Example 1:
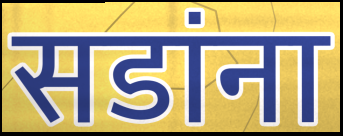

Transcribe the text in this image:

सडांना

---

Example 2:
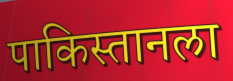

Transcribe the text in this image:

पाकिस्तानला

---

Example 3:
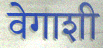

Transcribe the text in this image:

वेगाशी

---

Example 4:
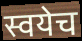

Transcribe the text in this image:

स्वयेच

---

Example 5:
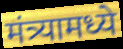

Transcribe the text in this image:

मंत्र्यामध्ये